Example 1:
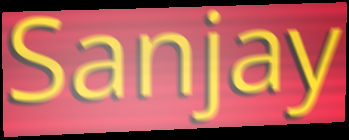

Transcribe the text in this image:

Sanjay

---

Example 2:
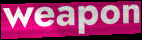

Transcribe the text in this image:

weapon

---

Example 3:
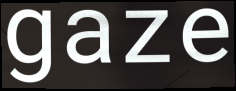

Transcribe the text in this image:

gaze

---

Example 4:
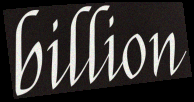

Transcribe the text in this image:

billion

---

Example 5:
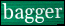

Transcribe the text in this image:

bagger